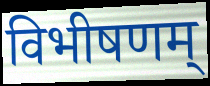
विभीषणम्